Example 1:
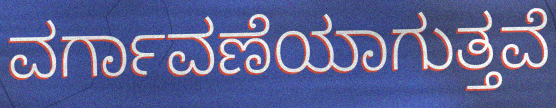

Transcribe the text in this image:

ವರ್ಗಾವಣೆಯಾಗುತ್ತವೆ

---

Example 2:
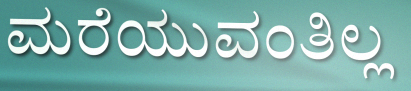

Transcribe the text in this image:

ಮರೆಯುವಂತಿಲ್ಲ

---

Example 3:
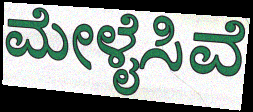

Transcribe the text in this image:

ಮೇಳೈಸಿವೆ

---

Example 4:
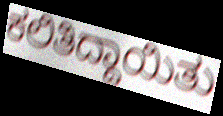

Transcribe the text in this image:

ಕಲಿತಿದ್ದಾಯಿತು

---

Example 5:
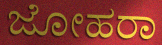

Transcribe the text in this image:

ಜೋಹರಾ